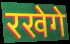
रखेगे